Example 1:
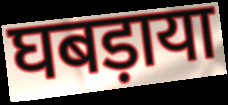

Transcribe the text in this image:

घबड़ाया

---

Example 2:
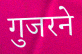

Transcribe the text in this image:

गुजरने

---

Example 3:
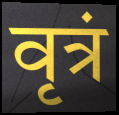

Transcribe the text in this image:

वृत्रं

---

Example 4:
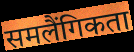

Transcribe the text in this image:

समलैंगिकता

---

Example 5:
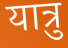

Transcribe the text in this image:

यात्रु